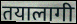
तयालागी